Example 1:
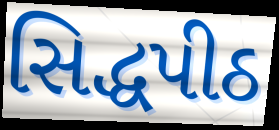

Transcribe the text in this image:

સિદ્ધપીઠ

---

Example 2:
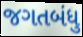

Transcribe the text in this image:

જગતબંધુ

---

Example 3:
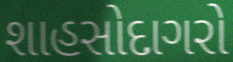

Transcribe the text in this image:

શાહસોદાગરો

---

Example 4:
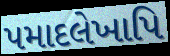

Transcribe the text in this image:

પમાદલેખાપિ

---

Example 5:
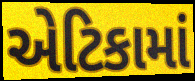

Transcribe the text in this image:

એટિકામાં